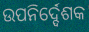
ଉପନିର୍ଦ୍ଦେଶକ